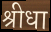
श्रीधा